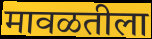
मावळतीला